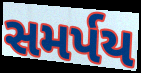
સમર્પય